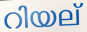
റിയല്